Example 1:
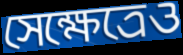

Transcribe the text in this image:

সেক্ষেত্রেও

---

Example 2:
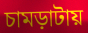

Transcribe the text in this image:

চামড়াটায়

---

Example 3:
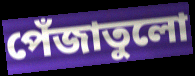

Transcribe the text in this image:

পেঁজাতুলো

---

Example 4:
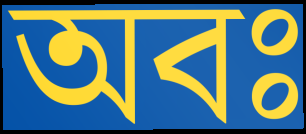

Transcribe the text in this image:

অবঃ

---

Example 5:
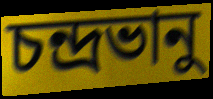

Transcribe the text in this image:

চন্দ্রভানু